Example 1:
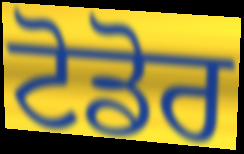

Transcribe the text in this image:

ਟੋਡੋਰ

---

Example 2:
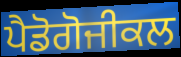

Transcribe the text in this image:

ਪੈਡੋਗੋਜੀਕਲ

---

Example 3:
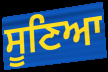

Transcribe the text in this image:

ਸੂਣਿਆ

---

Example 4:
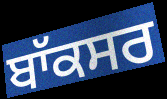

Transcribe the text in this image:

ਬਾੱਕਸਰ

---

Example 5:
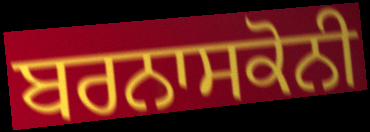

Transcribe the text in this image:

ਬਰਨਾਸਕੋਨੀ